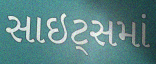
સાઇટ્સમાં